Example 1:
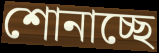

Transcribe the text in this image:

শোনাচ্ছে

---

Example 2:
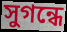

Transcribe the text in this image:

সুগন্ধে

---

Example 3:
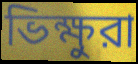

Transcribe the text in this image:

ভিক্ষুরা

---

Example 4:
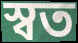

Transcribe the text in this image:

স্বত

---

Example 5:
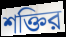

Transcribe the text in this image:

শক্তির